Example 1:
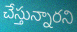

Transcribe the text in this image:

చేస్తున్నారని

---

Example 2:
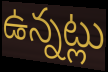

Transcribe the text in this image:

ఉన్నట్లు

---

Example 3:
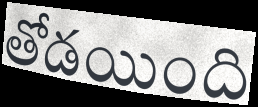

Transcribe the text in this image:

తోడయింది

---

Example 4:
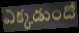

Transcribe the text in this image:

ఎక్కడుందో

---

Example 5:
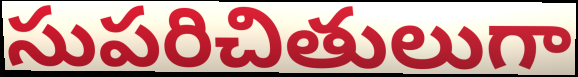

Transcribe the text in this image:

సుపరిచితులుగా